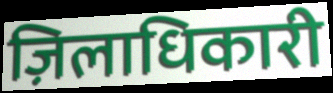
ज़िलाधिकारी